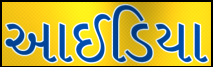
આઈડિયા